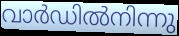
വാർഡിൽനിന്നു